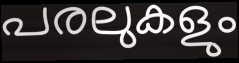
പരലുകളും